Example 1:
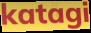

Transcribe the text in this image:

katagi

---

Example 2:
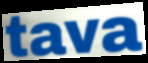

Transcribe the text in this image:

tava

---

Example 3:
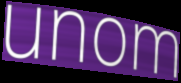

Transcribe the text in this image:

unom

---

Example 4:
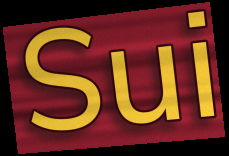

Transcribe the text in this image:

Sui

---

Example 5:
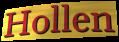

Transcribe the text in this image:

Hollen